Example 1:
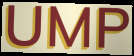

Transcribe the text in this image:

UMP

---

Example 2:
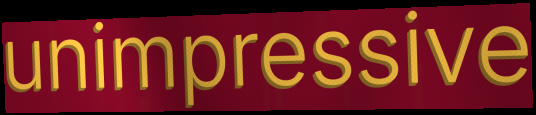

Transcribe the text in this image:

unimpressive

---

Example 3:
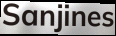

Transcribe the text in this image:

Sanjines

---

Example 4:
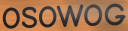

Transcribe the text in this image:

OSOWOG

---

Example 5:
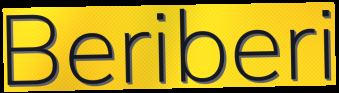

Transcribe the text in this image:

Beriberi